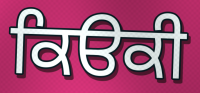
ਕਿੳਕੀ